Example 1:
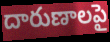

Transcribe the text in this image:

దారుణాలపై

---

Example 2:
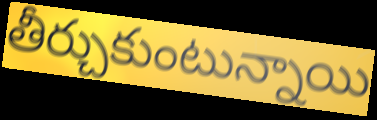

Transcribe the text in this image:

తీర్చుకుంటున్నాయి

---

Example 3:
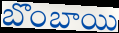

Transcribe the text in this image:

బొంబాయి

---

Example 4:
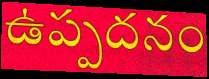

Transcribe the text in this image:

ఉప్పదనం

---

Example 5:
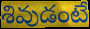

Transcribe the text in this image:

శివుడంటే